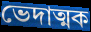
ভেদাত্মক